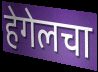
हेगेलचा